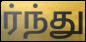
ர்ந்து